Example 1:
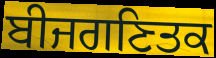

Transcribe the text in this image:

ਬੀਜਗਣਿਤਕ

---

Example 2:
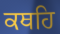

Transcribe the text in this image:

ਕਥਹਿ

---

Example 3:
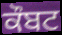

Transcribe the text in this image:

ਕੌਬਟ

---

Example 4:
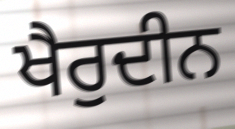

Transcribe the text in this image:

ਖੈਰੁਦੀਨ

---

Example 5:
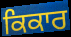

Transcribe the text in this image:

ਕਿਕਾਰ